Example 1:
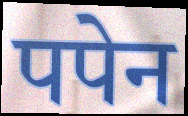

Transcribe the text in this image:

पपेन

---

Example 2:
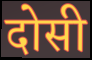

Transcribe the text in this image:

दोसी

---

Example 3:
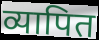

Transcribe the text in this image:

व्यापित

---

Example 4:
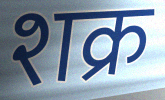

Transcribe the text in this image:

शक्र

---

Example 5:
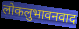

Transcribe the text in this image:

लोकलुभावनवाद